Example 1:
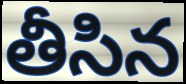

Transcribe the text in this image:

తీసిన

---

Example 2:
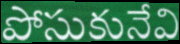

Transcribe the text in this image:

పోసుకునేవి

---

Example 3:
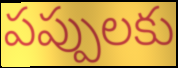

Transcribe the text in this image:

పప్పులకు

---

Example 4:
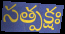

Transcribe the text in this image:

సత్పక్షః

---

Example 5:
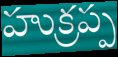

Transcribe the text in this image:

హుక్రప్ప